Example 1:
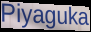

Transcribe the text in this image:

Piyaguka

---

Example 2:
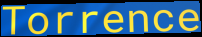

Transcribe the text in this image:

Torrence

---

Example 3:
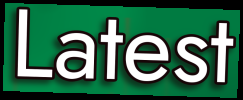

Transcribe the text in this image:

Latest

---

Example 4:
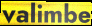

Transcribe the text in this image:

valimbe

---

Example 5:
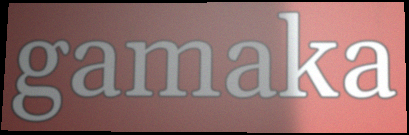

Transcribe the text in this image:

gamaka